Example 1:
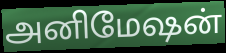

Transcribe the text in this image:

அனிமேஷன்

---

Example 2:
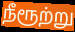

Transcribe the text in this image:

நீரூற்று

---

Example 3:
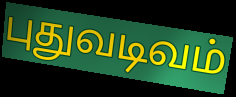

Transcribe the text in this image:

புதுவடிவம்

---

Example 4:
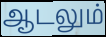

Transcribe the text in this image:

ஆடலும்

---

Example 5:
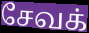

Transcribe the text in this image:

சேவக்